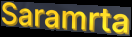
Saramrta